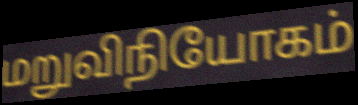
மறுவிநியோகம்